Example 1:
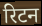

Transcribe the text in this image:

रिटन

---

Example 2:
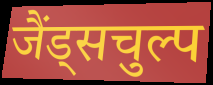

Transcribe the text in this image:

जैंड्सचुल्प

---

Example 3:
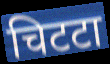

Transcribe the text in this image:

चिटटा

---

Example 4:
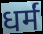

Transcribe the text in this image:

धर्म॑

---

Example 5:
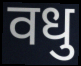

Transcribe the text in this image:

वधु